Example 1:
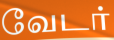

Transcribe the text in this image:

வேடர்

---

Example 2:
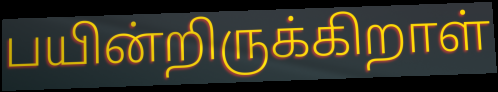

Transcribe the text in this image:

பயின்றிருக்கிறாள்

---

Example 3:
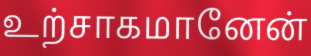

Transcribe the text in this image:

உற்சாகமானேன்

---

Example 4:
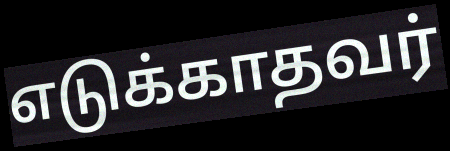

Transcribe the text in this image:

எடுக்காதவர்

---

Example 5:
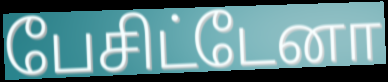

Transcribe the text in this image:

பேசிட்டேனா